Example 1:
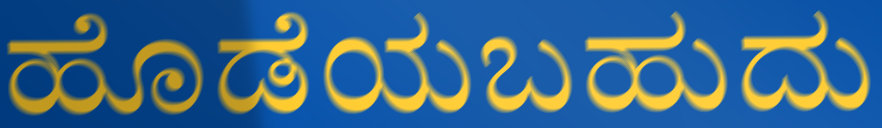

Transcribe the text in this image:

ಹೊಡೆಯಬಹುದು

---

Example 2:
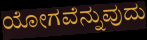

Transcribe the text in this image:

ಯೋಗವೆನ್ನುವುದು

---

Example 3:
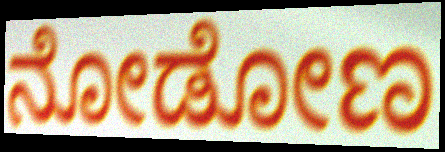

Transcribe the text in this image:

ನೋಡೋಣ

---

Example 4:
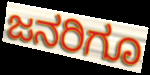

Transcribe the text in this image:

ಜನರಿಗೂ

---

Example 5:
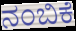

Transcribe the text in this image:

ನಂಬಿಕೆ